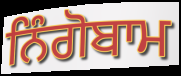
ਨਿੰਗੋਬਾਮ